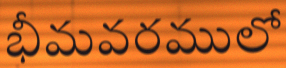
భీమవరములో